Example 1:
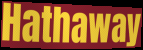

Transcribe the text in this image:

Hathaway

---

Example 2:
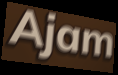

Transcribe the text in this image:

Ajam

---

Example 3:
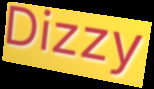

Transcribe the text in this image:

Dizzy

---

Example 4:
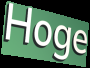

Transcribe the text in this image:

Hoge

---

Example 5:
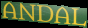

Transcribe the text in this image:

ANDAL